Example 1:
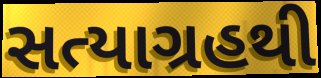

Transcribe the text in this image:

સત્યાગ્રહથી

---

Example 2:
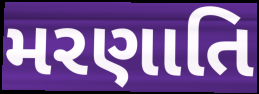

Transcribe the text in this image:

મરણાતિ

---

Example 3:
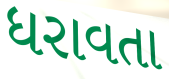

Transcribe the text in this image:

ધરાવતા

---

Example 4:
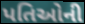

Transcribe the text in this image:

પતિઓની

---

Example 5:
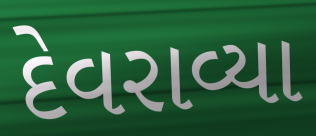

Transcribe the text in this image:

દેવરાવ્યા